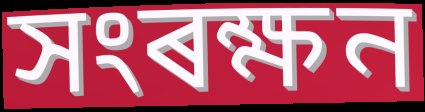
সংৰক্ষন